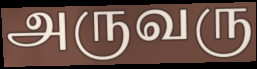
அருவரு